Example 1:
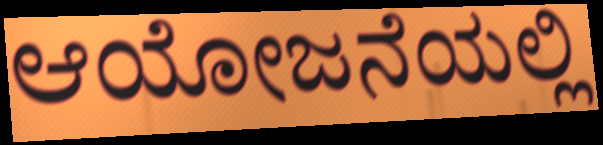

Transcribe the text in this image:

ಆಯೋಜನೆಯಲ್ಲಿ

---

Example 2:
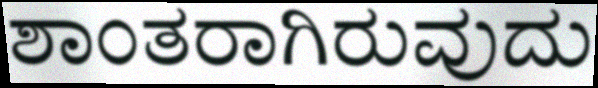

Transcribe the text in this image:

ಶಾಂತರಾಗಿರುವುದು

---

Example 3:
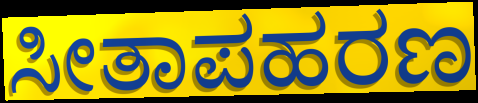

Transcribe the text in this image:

ಸೀತಾಪಹರಣ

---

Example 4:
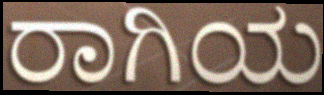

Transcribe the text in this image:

ರಾಗಿಯ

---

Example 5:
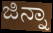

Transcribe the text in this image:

ಜಿನ್ನಾ